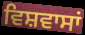
ਵਿਸ਼ਵਾਸਾਂ